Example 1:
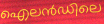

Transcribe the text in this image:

ഐലൻഡിലെ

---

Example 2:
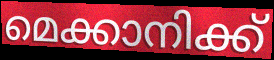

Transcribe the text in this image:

മെക്കാനിക്ക്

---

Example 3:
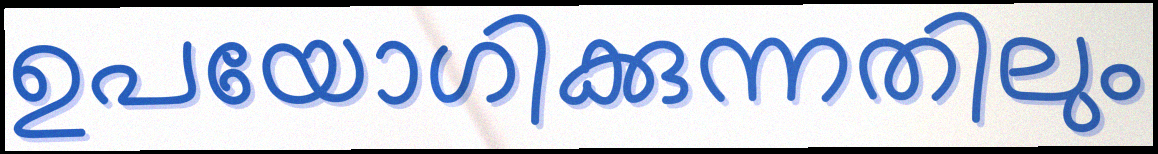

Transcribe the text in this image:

ഉപയോഗിക്കുന്നതിലും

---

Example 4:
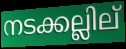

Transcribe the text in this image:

നടക്കല്ലില്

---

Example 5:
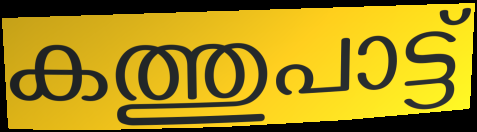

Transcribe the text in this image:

കത്തുപാട്ട്